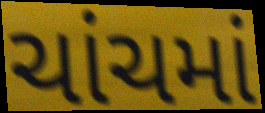
ચાંચમાં